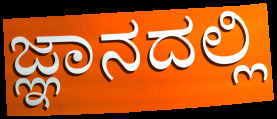
ಜ್ಞಾನದಲ್ಲಿ